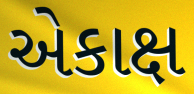
એકાક્ષ